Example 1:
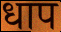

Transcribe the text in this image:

धाप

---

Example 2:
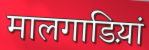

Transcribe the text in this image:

मालगाडिय़ां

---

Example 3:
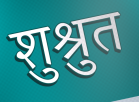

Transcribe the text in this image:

शुश्रुत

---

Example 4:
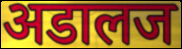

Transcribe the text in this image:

अडालज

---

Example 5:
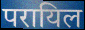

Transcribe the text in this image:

परायिल